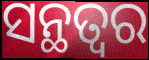
ସନ୍ଥତ୍ବର